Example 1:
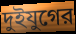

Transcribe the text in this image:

দুইযুগের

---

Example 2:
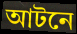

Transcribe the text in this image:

আটনে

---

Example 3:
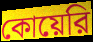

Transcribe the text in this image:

কোয়েরি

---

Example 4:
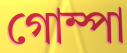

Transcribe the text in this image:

গোম্পা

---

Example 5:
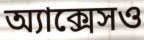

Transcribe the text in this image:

অ্যাক্সেসও